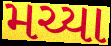
મચ્યા